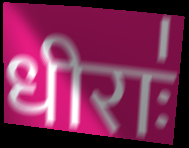
धीराः॑